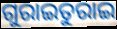
ଗୁରାଇତୁରାଇ